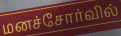
மனச்சோர்வில்